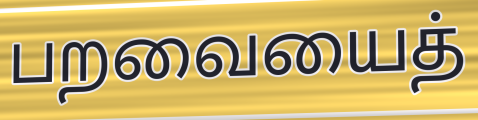
பறவையைத்